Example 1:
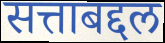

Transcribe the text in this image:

सत्ताबद्दल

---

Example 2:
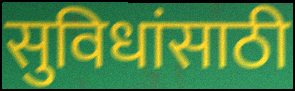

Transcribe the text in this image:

सुविधांसाठी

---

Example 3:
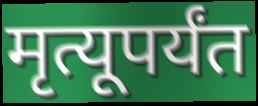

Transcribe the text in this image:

मृत्यूपर्यंत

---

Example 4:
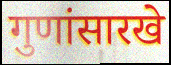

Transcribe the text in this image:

गुणांसारखे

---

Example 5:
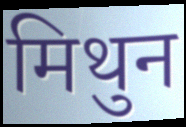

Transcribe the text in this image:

मिथुन